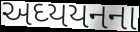
અઘ્યયનના